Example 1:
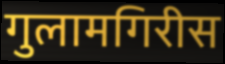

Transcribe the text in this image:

गुलामगिरीस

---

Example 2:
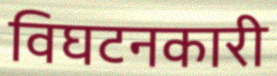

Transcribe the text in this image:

विघटनकारी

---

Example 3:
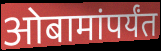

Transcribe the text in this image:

ओबामांपर्यंत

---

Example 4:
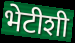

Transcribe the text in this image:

भेटीशी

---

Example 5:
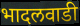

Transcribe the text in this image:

भादलवाडी